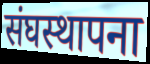
संघस्थापना